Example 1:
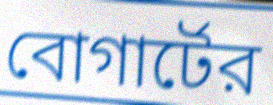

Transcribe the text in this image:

বোগার্টের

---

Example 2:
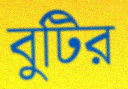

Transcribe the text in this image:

বুটির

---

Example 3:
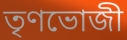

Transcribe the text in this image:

তৃণভোজী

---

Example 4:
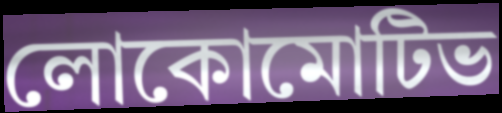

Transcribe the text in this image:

লোকোমোটিভ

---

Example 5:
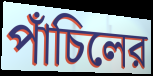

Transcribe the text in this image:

পাঁচিলের